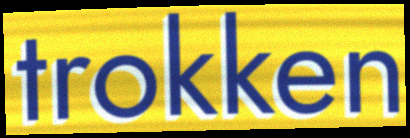
trokken